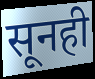
सूनही